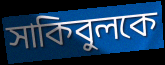
সাকিবুলকে